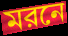
মরনে